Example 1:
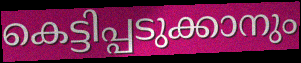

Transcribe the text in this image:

കെട്ടിപ്പടുക്കാനും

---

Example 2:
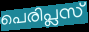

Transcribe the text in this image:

പെരിപ്ലസ്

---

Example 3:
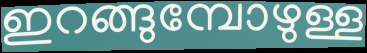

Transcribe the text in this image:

ഇറങ്ങുമ്പോഴുള്ള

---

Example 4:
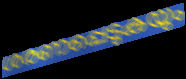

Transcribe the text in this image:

ശരണപ്പെടുകയും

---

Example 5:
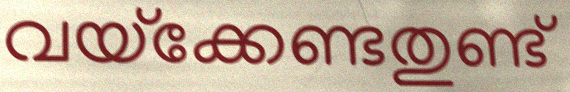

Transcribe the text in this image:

വയ്‌ക്കേണ്ടതുണ്ട്